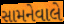
સામનેવાલે